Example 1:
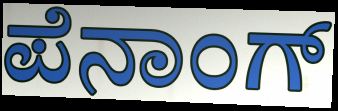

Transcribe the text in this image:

ಪೆನಾಂಗ್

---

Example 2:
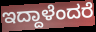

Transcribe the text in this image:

ಇದ್ದಾಳೆಂದರೆ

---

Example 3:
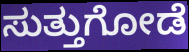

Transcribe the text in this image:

ಸುತ್ತುಗೋಡೆ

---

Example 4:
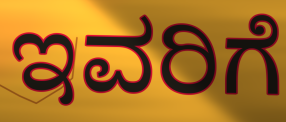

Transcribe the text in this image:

ಇವರಿಗೆ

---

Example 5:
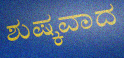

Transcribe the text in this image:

ಶುಷ್ಕವಾದ